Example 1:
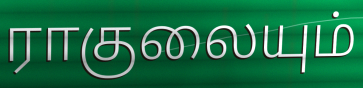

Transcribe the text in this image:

ராகுலையும்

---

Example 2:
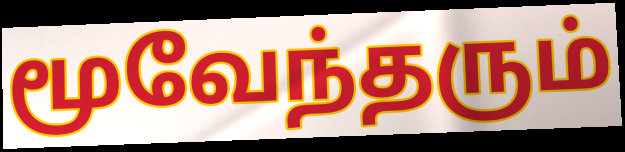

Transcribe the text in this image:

மூவேந்தரும்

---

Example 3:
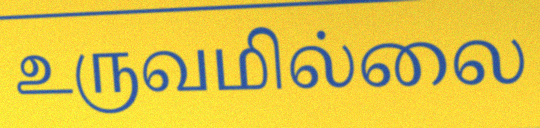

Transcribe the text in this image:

உருவமில்லை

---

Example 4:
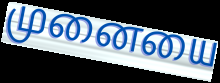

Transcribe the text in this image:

முனையை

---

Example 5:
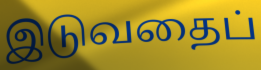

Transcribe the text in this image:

இடுவதைப்